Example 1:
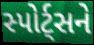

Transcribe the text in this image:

સ્પોર્ટ્સને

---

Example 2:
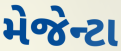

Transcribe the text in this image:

મેજેન્ટા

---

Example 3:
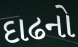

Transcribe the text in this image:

દાઢનો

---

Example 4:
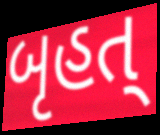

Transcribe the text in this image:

બૃહત્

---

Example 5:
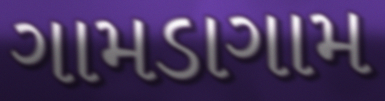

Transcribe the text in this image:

ગામડાગામ